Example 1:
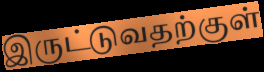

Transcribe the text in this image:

இருட்டுவதற்குள்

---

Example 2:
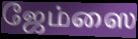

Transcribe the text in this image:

ஜேம்ஸை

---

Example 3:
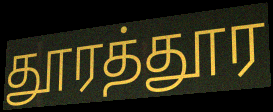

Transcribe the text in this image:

தூரத்தூர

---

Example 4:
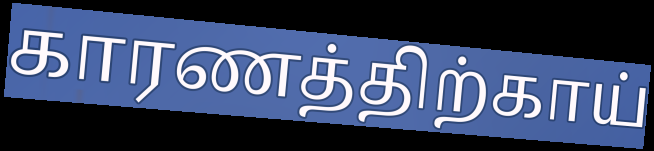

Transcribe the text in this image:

காரணத்திற்காய்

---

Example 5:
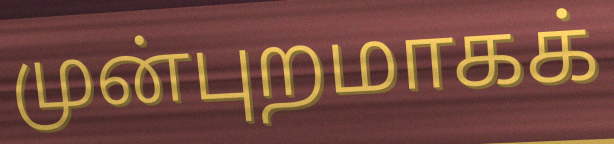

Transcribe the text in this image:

முன்புறமாகக்